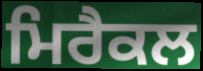
ਮਿਰੈਕਲ